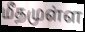
மீதமுள்ள